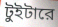
টুইটারে